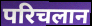
परिचलान